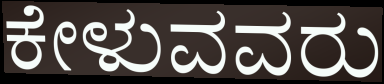
ಕೇಳುವವರು